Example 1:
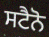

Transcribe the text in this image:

ਸਟੈਨੋ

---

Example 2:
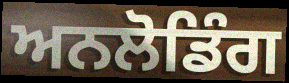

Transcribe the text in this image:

ਅਨਲੋਡਿੰਗ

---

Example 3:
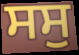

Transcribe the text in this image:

ਸਸੁ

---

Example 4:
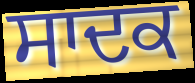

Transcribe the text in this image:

ਸਾਦਕ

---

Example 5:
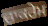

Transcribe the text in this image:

ਚਾਕਰੇਮ